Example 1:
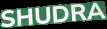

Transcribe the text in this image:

SHUDRA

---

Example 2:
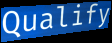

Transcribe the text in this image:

Qualify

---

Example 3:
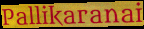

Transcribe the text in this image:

Pallikaranai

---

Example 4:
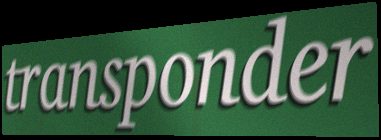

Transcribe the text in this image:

transponder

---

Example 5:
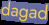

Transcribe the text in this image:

dagad